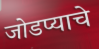
जोडप्याचे